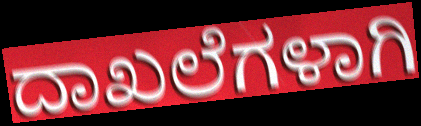
ದಾಖಲೆಗಳಾಗಿ